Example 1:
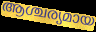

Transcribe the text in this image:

ആശ്ചര്യമായ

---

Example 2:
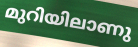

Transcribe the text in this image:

മുറിയിലാണു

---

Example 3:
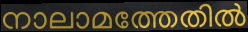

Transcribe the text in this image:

നാലാമത്തേതിൽ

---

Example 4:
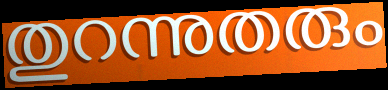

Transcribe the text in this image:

തുറന്നുതരും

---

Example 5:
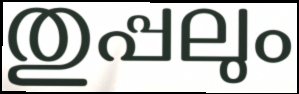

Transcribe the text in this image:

തുപ്പലും